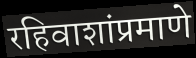
रहिवाशांप्रमाणे